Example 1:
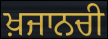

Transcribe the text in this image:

ਖ਼ਜਾਨਚੀ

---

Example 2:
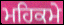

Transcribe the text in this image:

ਮਹਿਕਮੇ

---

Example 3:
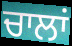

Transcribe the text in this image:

ਚਾਲਾਂ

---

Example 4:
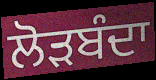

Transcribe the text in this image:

ਲੋੜਬੰਦਾ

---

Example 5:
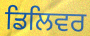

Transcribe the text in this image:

ਡਿਲਿਵਰ